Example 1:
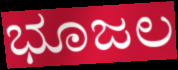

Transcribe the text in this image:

ಭೂಜಲ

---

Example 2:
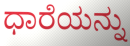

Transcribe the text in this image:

ಧಾರೆಯನ್ನು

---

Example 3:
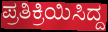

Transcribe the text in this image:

ಪ್ರತಿಕ್ರಿಯಿಸಿದ್ದ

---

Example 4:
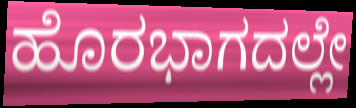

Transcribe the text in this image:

ಹೊರಭಾಗದಲ್ಲೇ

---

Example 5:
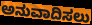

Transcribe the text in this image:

ಅನುವಾದಿಸಲು